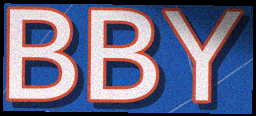
BBY